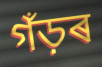
গঁড়ৰ